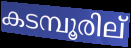
കടമ്പൂരില്